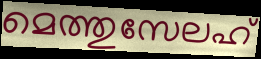
മെത്തുസേലഹ്